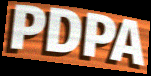
PDPA